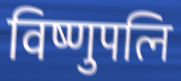
विष्णुपत्नि